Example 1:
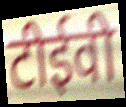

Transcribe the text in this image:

टीईवी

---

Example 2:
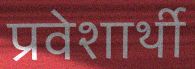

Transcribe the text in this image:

प्रवेशार्थी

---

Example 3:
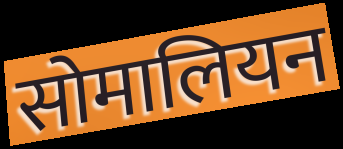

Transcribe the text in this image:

सोमालियन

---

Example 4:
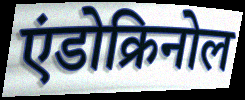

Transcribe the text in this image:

एंडोक्रिनोल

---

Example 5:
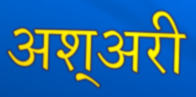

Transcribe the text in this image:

अश्अरी